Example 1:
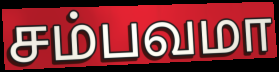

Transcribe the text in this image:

சம்பவமா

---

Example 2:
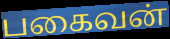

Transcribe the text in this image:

பகைவன்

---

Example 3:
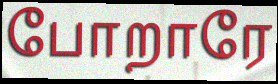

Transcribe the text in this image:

போறாரே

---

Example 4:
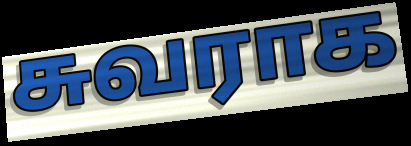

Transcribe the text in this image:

சுவராக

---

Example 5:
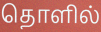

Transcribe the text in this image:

தொளில்